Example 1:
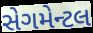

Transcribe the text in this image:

સેગમેન્ટલ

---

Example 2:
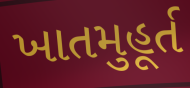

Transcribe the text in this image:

ખાતમુહૂર્ત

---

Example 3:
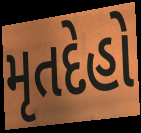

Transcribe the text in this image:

મૃતદેહો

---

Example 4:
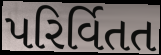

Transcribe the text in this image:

પરિર્વિતત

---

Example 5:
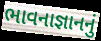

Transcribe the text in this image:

ભાવનાજ્ઞાનનું